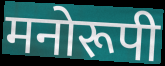
मनोरूपी